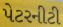
પેટરનીટી